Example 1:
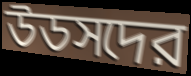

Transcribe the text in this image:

উডসদের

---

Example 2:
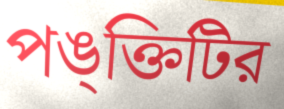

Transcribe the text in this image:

পঙ্‌ক্তিটির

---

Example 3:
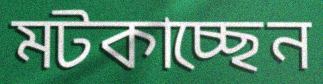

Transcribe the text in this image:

মটকাচ্ছেন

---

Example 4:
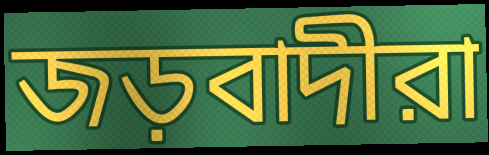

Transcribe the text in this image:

জড়বাদীরা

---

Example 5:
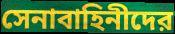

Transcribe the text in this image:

সেনাবাহিনীদের